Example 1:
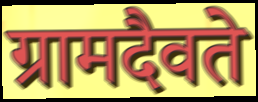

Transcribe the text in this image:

ग्रामदैवते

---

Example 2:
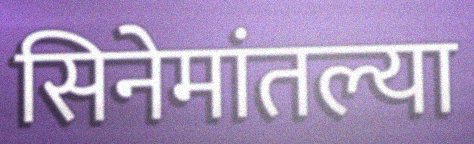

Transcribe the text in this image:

सिनेमांतल्या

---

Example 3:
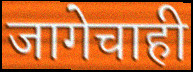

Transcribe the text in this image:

जागेचाही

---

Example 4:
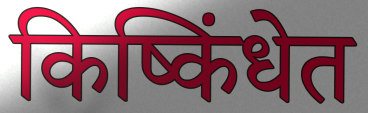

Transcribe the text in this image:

किष्किंधेत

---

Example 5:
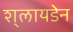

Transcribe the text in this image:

श्लायडेन